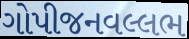
ગોપીજનવલ્લભ